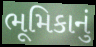
ભૂમિકાનું